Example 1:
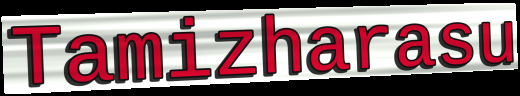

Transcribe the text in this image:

Tamizharasu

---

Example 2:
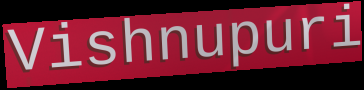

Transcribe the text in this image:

Vishnupuri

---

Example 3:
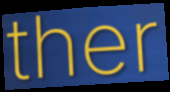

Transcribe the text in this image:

ther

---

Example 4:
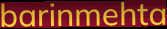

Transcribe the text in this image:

barinmehta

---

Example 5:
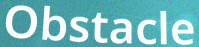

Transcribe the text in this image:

Obstacle